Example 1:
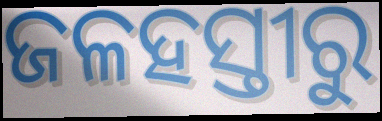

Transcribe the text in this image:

ଜଳହସ୍ତୀରୁ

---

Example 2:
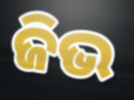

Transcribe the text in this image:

ଜିଭ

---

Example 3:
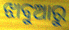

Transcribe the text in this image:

ଝାବୁଆରୁ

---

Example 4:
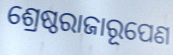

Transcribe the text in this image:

ଶ୍ରେଷ୍ଠରାଜାରୂପେଣ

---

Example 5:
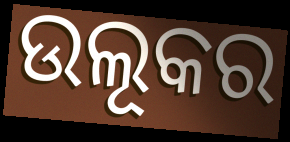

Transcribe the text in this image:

ଉଲୂକର